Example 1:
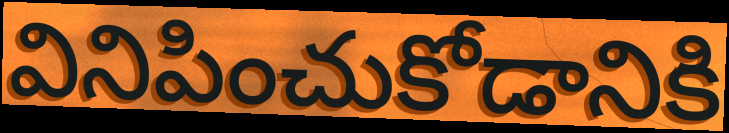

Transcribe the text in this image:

వినిపించుకోడానికి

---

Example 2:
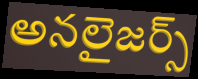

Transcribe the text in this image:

అనలైజర్స్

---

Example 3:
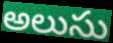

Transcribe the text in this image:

అలుసు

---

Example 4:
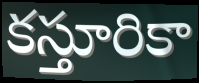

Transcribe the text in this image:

కస్తూరికా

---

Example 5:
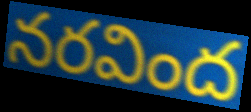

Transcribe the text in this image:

నరవింద